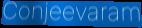
Conjeevaram